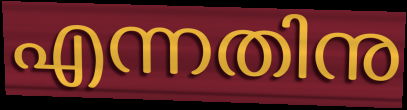
എന്നതിനു